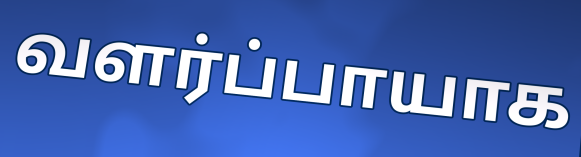
வளர்ப்பாயாக